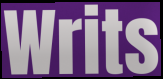
Writs